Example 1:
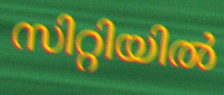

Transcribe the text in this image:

സിറ്റിയിൽ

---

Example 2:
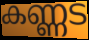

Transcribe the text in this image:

കണ്ണട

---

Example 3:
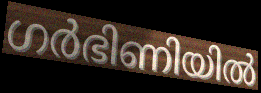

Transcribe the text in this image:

ഗർഭിണിയിൽ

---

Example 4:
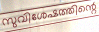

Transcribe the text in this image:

സുവിശേഷത്തിന്റെ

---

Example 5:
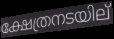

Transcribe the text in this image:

ക്ഷേത്രനടയില്